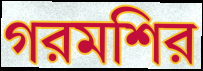
গরমশির